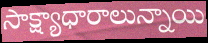
సాక్ష్యాధారాలున్నాయి